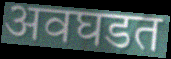
अवघडत